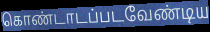
கொண்டாடப்படவேண்டிய